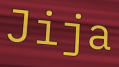
Jija